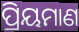
ପ୍ରିୟମାଣ